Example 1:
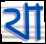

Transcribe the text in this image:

থা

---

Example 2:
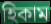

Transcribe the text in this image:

হিকাম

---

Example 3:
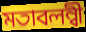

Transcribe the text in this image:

মতাবলন্বী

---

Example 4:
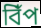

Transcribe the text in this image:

বিঁপ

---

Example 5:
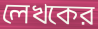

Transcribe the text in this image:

লেখকের